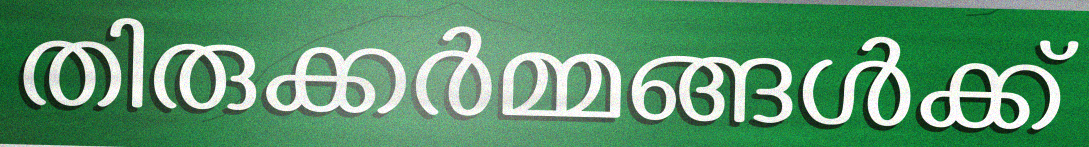
തിരുക്കർമ്മങ്ങൾക്ക്